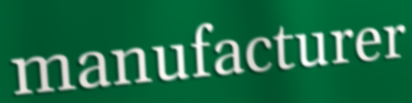
manufacturer